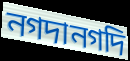
নগদানগদি